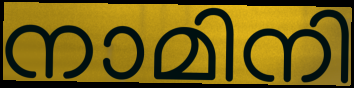
നാമിനി